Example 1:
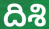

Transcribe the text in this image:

దిశి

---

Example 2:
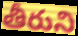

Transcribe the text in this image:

తీరుని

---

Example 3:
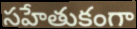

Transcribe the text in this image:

సహేతుకంగా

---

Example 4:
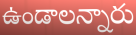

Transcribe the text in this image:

ఉండాలన్నారు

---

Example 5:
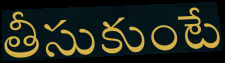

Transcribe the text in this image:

తీసుకుంటే